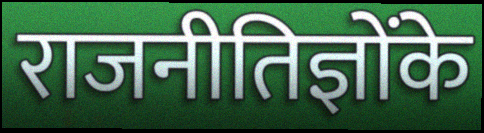
राजनीतिज्ञोंके